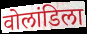
वोलांडिला